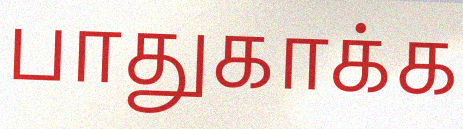
பாதுகாக்க